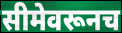
सीमेवरूनच